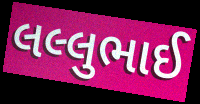
લલ્લુભાઈ